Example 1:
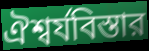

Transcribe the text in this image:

ঐশ্বর্যবিস্তার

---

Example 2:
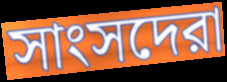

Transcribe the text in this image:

সাংসদেরা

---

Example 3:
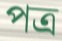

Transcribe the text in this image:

পত্র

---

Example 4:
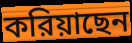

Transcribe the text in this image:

করিয়াছেন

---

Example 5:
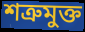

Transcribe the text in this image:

শত্রুমুক্ত